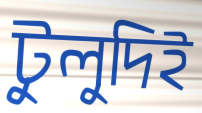
টুলুদিই